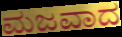
ಮಜವಾದ